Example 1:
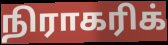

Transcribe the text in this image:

நிராகரிக்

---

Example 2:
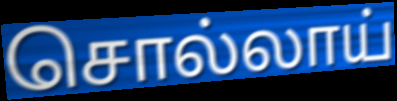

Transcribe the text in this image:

சொல்லாய்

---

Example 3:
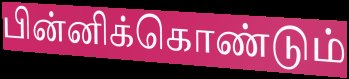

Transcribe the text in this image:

பின்னிக்கொண்டும்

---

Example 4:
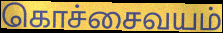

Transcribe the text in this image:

கொச்சைவயம்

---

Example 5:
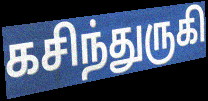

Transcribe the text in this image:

கசிந்துருகி